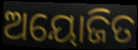
ଅୟୋଜିତ